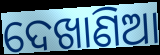
ଦେଖାଣିଆ